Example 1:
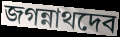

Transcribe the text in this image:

জগন্নাথদেব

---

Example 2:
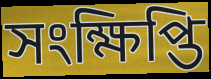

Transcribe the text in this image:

সংক্ষিপ্তি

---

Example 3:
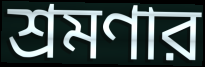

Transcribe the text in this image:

শ্রমণার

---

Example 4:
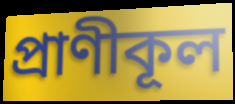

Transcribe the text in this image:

প্রাণীকূল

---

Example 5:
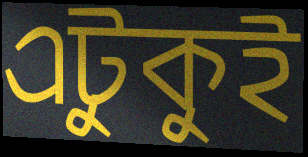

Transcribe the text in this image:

এটুকুই